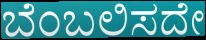
ಬೆಂಬಲಿಸದೇ